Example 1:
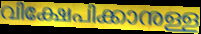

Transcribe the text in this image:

വിക്ഷേപിക്കാനുള്ള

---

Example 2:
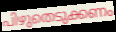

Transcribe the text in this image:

പിഴുതെടുക്കണം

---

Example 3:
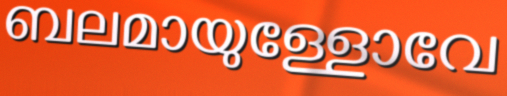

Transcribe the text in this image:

ബലമായുള്ളോവേ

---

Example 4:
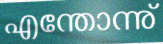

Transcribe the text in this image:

എന്തോന്നു്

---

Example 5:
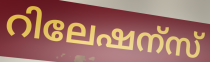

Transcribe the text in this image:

റിലേഷന്സ്